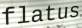
flatus